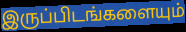
இருப்பிடங்களையும்